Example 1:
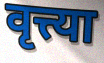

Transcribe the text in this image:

वृत्त्या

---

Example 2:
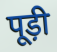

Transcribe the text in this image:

पूड़ी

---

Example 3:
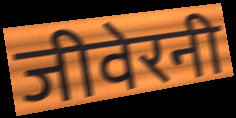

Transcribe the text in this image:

जीवेरनी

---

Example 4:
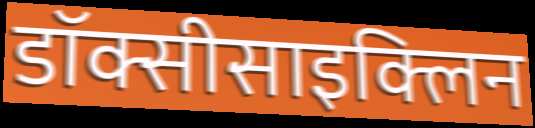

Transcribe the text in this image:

डॉक्सीसाइक्लिन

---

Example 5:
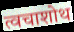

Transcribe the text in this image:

त्वचाशोथ